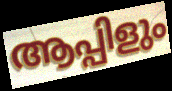
ആപ്പിളും